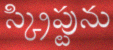
స్క్రిప్టును